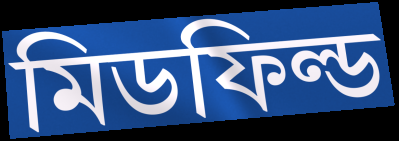
মিডফিল্ড